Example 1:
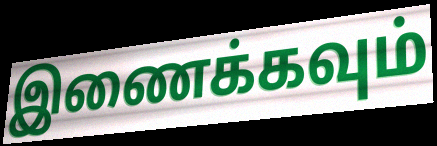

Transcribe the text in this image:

இணைக்கவும்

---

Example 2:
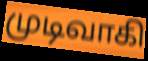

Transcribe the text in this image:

முடிவாகி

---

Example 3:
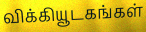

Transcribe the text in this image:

விக்கியூடகங்கள்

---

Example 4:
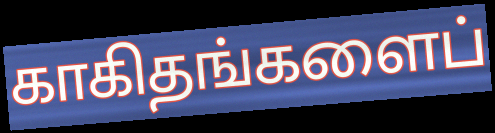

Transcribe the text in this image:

காகிதங்களைப்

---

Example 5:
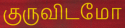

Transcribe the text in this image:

குருவிடமோ